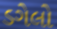
ડગેલો